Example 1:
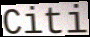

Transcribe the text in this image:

Citi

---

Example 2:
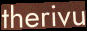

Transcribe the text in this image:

therivu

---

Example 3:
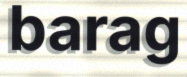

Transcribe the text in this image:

barag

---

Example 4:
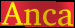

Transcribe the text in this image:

Anca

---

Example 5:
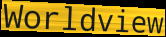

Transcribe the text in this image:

Worldview